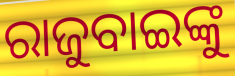
ରାଜୁବାଇଙ୍କୁ